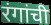
रंगांची